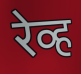
रेव्ह